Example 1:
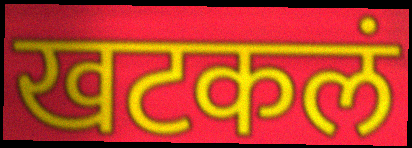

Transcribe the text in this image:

खटकलं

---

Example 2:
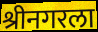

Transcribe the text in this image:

श्रीनगरला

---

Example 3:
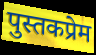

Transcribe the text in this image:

पुस्तकप्रेम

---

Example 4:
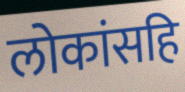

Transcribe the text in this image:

लोकांसहि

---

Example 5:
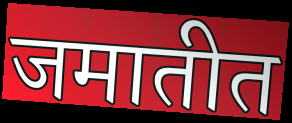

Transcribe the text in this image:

जमातीत